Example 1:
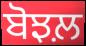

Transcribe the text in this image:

ਬੋਝਲ਼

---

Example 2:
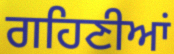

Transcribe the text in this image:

ਗਹਿਣੀਆਂ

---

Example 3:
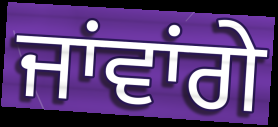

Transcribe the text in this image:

ਜਾਂਵਾਂਗੇ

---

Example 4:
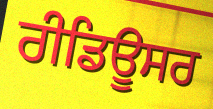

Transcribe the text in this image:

ਰੀਡਿਊਸਰ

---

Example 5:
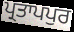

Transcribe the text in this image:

ਪ੍ਰਤਾਪਪੁਰ